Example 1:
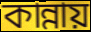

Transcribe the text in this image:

কান্নায়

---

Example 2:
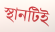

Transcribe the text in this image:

স্থানটিই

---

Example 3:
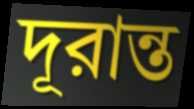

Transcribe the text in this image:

দূরান্ত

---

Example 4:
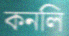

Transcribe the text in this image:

কনলি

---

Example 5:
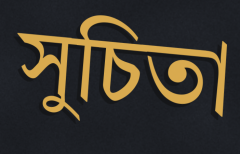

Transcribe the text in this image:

সুচিতা